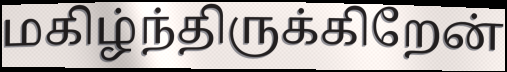
மகிழ்ந்திருக்கிறேன்